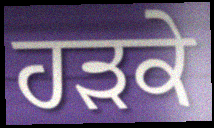
ਹੜਕੇ